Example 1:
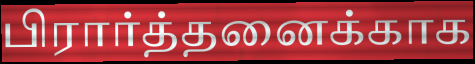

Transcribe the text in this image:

பிரார்த்தனைக்காக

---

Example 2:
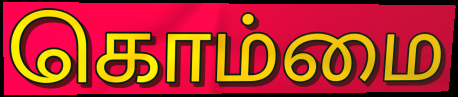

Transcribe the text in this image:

கொம்மை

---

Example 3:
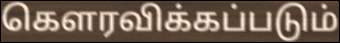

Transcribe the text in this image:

கௌரவிக்கப்படும்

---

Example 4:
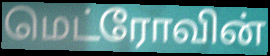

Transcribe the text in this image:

மெட்ரோவின்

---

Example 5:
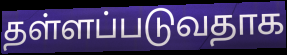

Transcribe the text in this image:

தள்ளப்படுவதாக